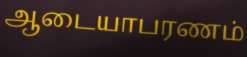
ஆடையாபரணம்